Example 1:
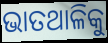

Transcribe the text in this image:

ଭାତଥାଳିକୁ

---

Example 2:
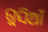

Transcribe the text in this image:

ଗୁସିଆଁ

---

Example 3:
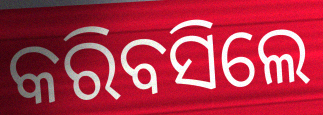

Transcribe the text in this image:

କରିବସିଲେ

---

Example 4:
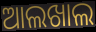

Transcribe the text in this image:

ଆଲଖାଲ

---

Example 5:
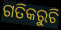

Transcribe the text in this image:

ଗତିକରୁଚି